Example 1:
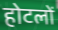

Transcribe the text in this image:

होटलों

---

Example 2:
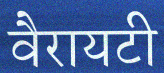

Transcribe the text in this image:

वैरायटी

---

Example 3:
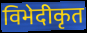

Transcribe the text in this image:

विभेदीकृत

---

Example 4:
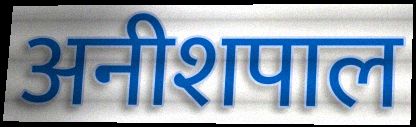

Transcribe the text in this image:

अनीशपाल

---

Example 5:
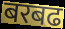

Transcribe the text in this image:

बरबढ